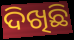
ଦିଖିଛି